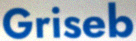
Griseb